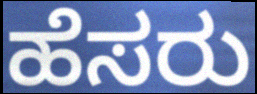
ಹೆಸರು